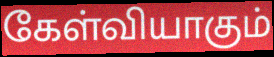
கேள்வியாகும்